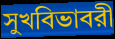
সুখবিভাবরী